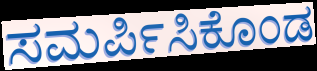
ಸಮರ್ಪಿಸಿಕೊಂಡ